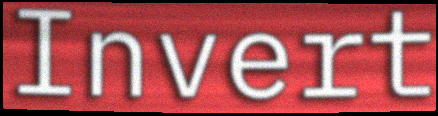
Invert